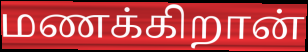
மணக்கிறான்